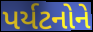
પર્યટનોને